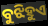
ବୁଝିହୁଏ